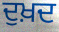
ਦੁਖ਼ਦ